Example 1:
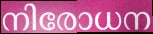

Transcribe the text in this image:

നിരോധന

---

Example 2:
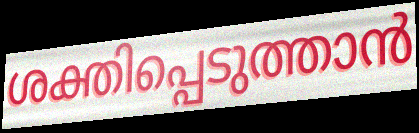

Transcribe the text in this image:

ശക്തിപ്പെടുത്താൻ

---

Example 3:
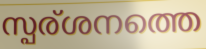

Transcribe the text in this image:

സ്പര്ശനത്തെ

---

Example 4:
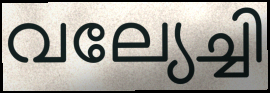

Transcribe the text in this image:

വല്യേച്ചി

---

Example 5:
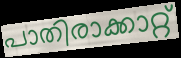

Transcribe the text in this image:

പാതിരാക്കാറ്റ്